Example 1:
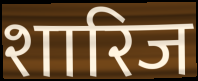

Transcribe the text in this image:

शारिज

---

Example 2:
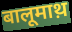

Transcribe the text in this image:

बालूमाथ़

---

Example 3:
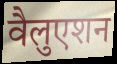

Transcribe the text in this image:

वैलुएशन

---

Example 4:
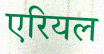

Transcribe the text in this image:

एरियल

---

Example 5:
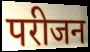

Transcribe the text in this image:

परीजन